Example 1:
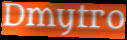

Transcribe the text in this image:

Dmytro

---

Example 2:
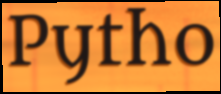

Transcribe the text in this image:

Pytho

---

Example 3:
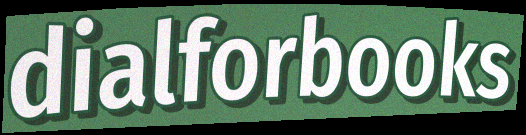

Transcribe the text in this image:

dialforbooks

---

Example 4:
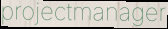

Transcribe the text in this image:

projectmanager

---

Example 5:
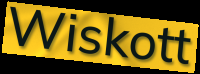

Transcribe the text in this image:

Wiskott